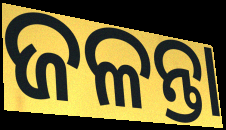
ଜଳନ୍ତା